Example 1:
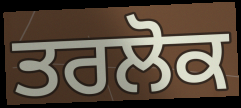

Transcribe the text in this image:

ਤਰਲੋਕ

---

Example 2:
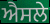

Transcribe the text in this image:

ਐਸਲੇ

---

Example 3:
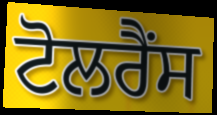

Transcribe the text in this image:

ਟੋਲਰੈਂਸ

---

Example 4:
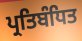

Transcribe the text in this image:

ਪ੍ਰਤਿਬੰਧਿਤ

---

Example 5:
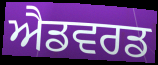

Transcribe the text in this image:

ਐਡਵਰਡ